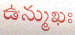
ఉన్ముఖః